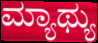
ಮ್ಯಾಥ್ಯು